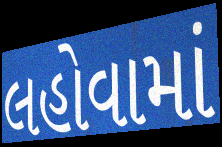
લહોવામાં